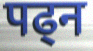
पढ्न